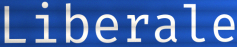
Liberale